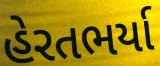
હેરતભર્યા